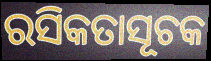
ରସିକତାସୂଚକ